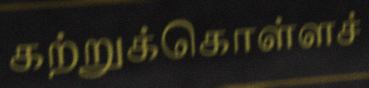
கற்றுக்கொள்ளச்